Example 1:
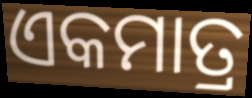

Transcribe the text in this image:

ଏକମାତ୍ର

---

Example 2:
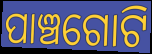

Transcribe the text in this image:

ପାଞ୍ଚଗୋଟି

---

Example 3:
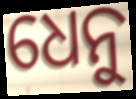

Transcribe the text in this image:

ଧେନୁ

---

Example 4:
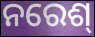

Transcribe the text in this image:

ନରେଶ୍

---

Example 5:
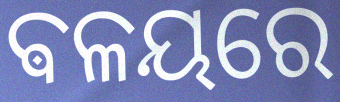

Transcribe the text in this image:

ଵଳୟରେ